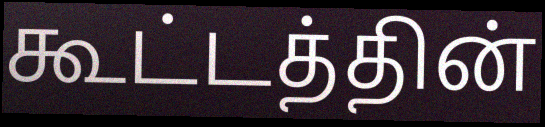
கூட்டத்தின்